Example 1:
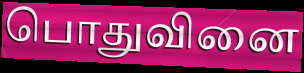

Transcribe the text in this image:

பொதுவினை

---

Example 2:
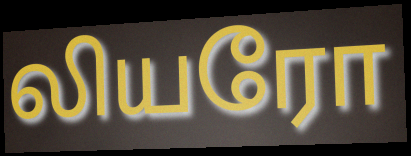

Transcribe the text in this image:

லியரோ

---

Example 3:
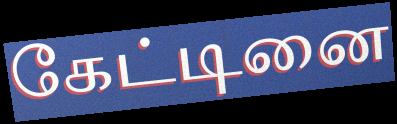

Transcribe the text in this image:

கேட்டினை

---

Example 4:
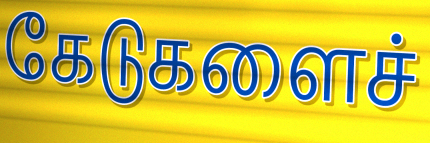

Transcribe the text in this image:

கேடுகளைச்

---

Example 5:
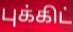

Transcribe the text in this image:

புக்கிட்